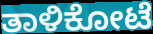
ತಾಳಿಕೋಟೆ